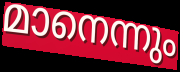
മാനെന്നും